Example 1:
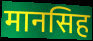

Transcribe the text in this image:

मानसिह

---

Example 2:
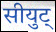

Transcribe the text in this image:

सीयुट्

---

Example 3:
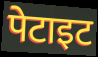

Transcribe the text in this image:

पेटाइट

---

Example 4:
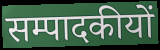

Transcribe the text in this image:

सम्पादकीयों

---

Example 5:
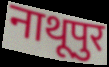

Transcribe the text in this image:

नाथूपुर